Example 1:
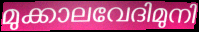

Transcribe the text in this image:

മുക്കാലവേദിമുനി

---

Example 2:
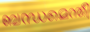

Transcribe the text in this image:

ബന്ധമെന്തീ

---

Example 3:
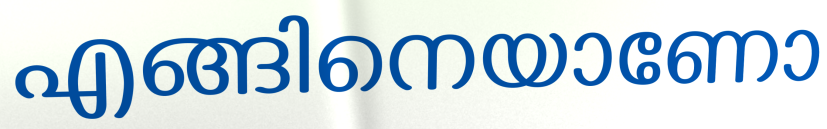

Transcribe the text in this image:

എങ്ങിനെയാണോ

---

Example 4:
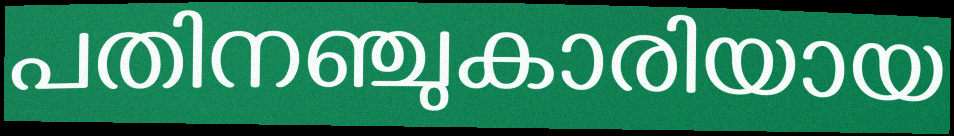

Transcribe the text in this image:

പതിനഞ്ചുകാരിയായ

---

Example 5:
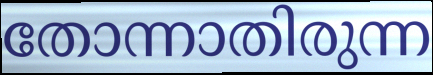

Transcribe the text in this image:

തോന്നാതിരുന്ന